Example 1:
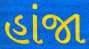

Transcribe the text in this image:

હાંજા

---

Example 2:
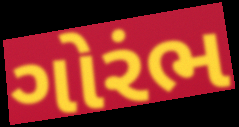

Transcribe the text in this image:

ગોરંભ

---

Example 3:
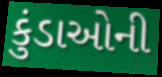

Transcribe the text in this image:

કુંડાઓની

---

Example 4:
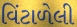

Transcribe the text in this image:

વિંટાળેલી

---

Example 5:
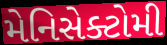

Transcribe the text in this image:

મેનિસેક્ટોમી